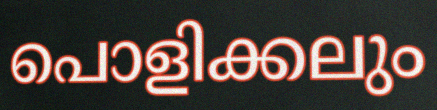
പൊളിക്കലും